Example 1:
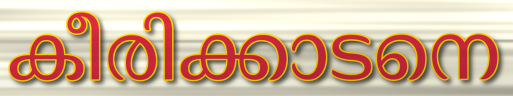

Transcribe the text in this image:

കീരിക്കാടനെ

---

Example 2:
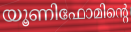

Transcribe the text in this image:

യൂണിഫോമിന്റെ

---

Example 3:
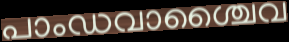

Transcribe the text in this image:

പാംഡവാശ്ചൈവ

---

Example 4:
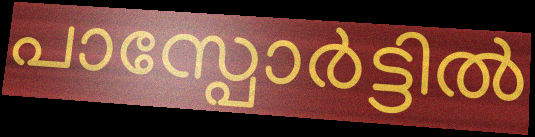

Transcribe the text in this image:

പാസ്പോർട്ടിൽ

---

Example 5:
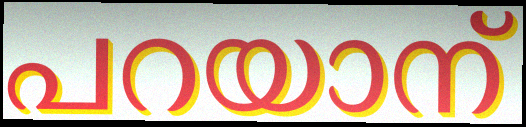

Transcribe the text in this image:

പറയാന്